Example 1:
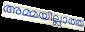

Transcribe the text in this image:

അമ്മയില്ലാത്ത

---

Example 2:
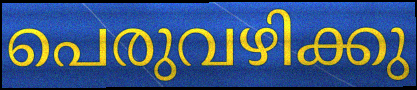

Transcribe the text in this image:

പെരുവഴിക്കു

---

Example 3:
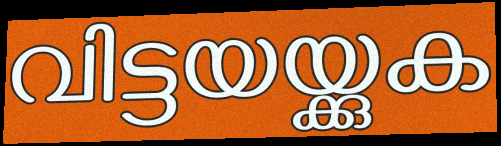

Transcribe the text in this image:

വിട്ടയയ്ക്കുക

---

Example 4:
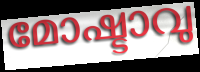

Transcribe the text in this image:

മോഷ്ടാവു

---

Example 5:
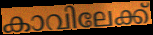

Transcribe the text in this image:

കാവിലേക്ക്